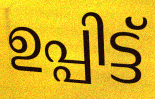
ഉപ്പിട്ട്